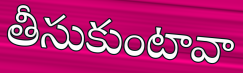
తీసుకుంటావా